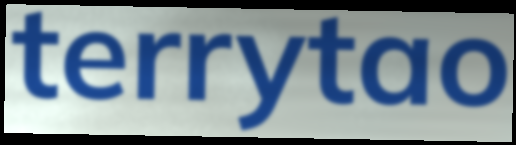
terrytao